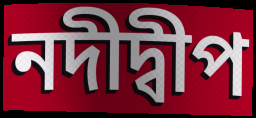
নদীদ্বীপ